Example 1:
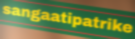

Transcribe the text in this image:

sangaatipatrike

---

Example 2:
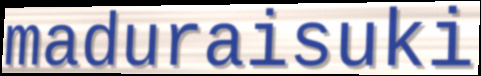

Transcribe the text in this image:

maduraisuki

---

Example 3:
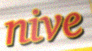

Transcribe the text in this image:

nive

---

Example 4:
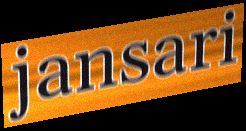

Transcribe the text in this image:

jansari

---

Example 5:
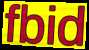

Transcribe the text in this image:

fbid